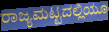
ರಾಜ್ಯಮಟ್ಟದಲ್ಲಿಯೂ